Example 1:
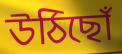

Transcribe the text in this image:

উঠিছোঁ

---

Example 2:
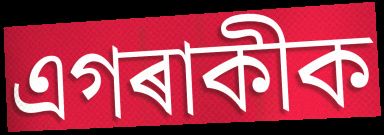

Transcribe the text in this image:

এগৰাকীক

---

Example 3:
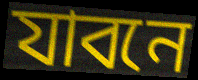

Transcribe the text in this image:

যাবনে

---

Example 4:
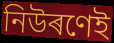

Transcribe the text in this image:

নিউৰণেই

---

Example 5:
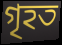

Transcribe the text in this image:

গৃহত